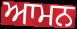
ਆਮਨ